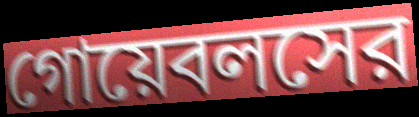
গোয়েবলসের